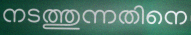
നടത്തുന്നതിനെ